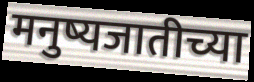
मनुष्यजातीच्या